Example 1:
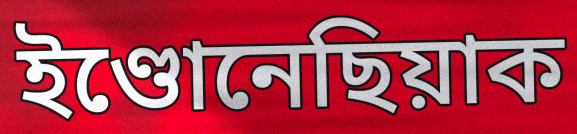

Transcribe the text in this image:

ইণ্ডোনেছিয়াক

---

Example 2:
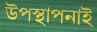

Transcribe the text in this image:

উপস্থাপনাই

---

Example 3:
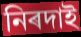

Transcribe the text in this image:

নিৰদাই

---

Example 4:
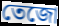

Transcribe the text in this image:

তেজো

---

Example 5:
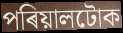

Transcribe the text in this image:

পৰিয়ালটোক